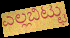
ಎಲ್ಲಬಿಟ್ಟು